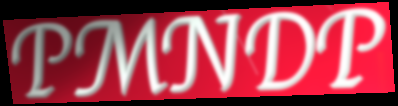
PMNDP